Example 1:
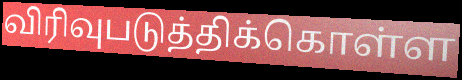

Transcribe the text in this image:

விரிவுபடுத்திக்கொள்ள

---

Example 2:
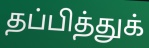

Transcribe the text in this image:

தப்பித்துக்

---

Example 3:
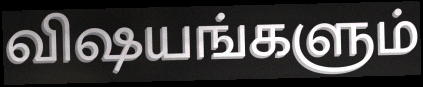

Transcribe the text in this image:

விஷயங்களும்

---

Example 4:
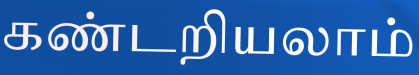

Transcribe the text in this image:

கண்டறியலாம்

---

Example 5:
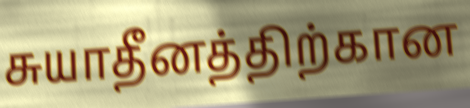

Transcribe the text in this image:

சுயாதீனத்திற்கான